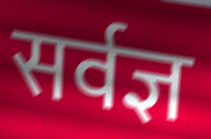
सर्वज्ञ